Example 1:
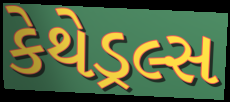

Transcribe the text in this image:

કેથેડ્રલ્સ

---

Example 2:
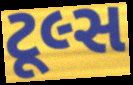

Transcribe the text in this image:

ટૂલ્સ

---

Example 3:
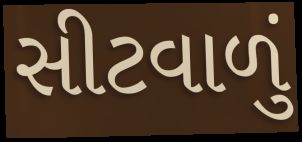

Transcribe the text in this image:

સીટવાળું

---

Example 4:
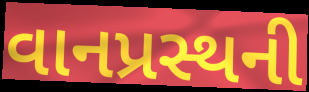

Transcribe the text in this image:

વાનપ્રસ્થની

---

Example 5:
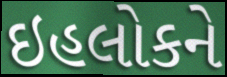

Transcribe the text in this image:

ઇહલોકને